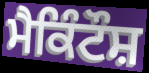
ਮੈਕਿੰਟੌਸ਼